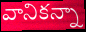
వానికన్నా